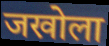
जखोला